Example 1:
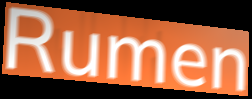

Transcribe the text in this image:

Rumen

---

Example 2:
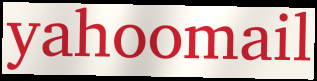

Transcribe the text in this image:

yahoomail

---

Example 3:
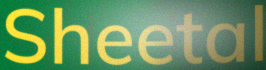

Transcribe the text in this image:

Sheetal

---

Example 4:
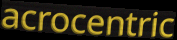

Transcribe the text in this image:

acrocentric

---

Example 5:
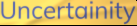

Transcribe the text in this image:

Uncertainity